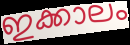
ഇക്കാലം